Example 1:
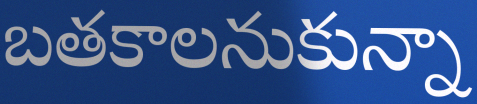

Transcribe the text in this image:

బతకాలనుకున్నా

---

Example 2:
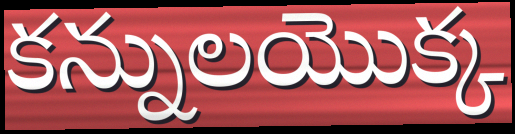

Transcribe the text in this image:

కన్నులయొక్క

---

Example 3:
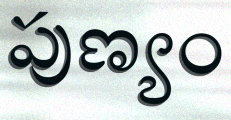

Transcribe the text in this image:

పుణ్యం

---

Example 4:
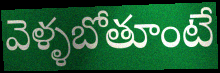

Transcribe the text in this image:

వెళ్ళబోతూంటే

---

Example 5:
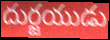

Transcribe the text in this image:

దుర్జయుడు